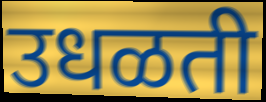
उधळती